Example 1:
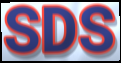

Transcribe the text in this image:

SDS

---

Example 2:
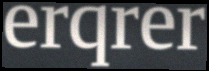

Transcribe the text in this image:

erqrer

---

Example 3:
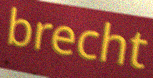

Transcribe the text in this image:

brecht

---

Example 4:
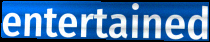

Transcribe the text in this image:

entertained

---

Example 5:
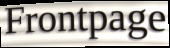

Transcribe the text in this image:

Frontpage